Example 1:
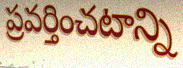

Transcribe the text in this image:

ప్రవర్తించటాన్ని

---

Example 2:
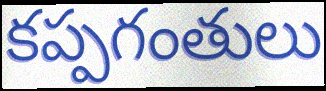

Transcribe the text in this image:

కప్పగంతులు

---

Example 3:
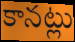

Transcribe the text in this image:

కానట్లు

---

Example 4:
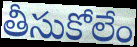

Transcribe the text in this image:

తీసుకోలేం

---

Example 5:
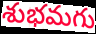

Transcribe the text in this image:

శుభమగు